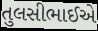
તુલસીભાઈએ